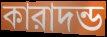
কারাদন্ড